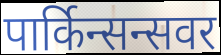
पार्किन्सन्सवर